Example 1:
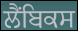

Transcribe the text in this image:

ਲੈਂਬਿਕਸ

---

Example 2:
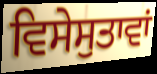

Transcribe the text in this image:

ਵਿਸੇਸੁਤਾਵਾਂ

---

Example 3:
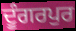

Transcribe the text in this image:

ਦੂੰਗਰਪੁਰ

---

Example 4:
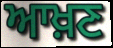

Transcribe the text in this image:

ਆਖ਼ਣ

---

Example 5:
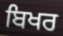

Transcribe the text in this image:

ਬਿਖਰ